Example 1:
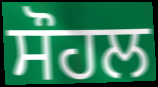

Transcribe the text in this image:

ਸੌਹਲ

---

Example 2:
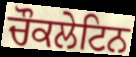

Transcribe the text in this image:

ਚੌਕਲੇਟਿਨ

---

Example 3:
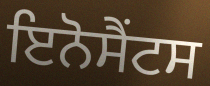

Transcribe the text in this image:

ਇਨੋਸੈਂਟਸ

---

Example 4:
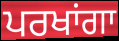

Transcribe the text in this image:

ਪਰਖਾਂਗਾ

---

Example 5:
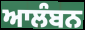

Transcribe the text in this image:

ਆਲੰਬਨ